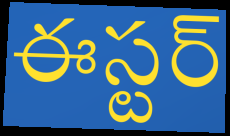
ఈస్టర్